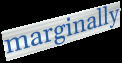
marginally